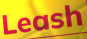
Leash